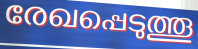
രേഖപ്പെടുത്തൂ